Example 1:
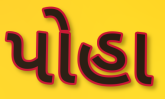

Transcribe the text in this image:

પોહા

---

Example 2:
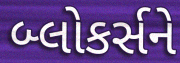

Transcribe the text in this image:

બ્લોકર્સને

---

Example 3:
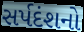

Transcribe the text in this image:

સર્પદંશનો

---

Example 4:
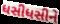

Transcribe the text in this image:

ધસીધસીને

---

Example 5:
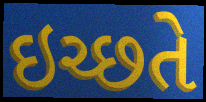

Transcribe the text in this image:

ઇચ્છતે